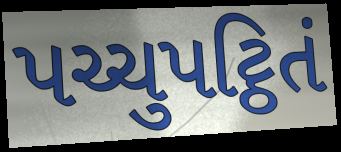
પચ્ચુપટ્ઠિતં